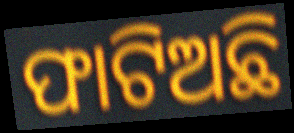
ଫାଟିଅଛି